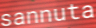
sannuta